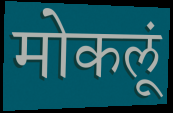
मोकलूं